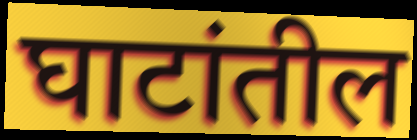
घाटांतील